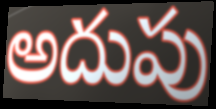
అదుపు